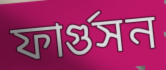
ফার্গুসন